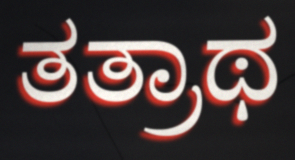
ತತ್ರಾಥ